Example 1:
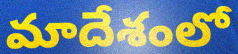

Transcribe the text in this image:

మాదేశంలో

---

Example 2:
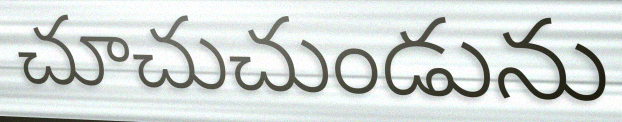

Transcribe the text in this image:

చూచుచుండును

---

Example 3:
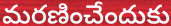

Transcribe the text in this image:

మరణించేందుకు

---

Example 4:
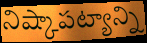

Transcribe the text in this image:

నిష్కాపట్యాన్ని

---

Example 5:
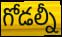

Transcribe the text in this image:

గోడల్నీ